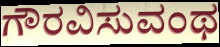
ಗೌರವಿಸುವಂಥ